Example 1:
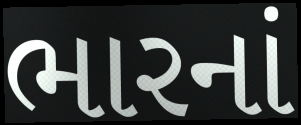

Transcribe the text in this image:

ભારનાં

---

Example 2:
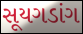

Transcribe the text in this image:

સૂયગડાંગ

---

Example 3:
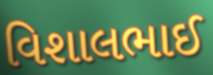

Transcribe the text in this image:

વિશાલભાઈ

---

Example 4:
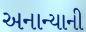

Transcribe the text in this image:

અનાન્યાની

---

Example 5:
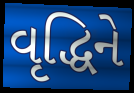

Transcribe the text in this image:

વૃદ્ધિને